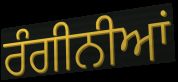
ਰੰਗੀਨੀਆਂ